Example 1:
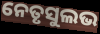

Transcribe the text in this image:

ନେତୃସୁଲଭ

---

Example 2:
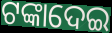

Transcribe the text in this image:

ଟଙ୍କାଦେଇ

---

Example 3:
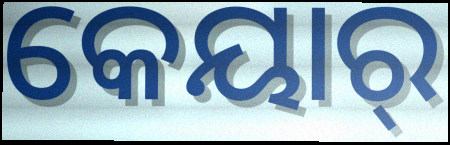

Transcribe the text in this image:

କେୟାର୍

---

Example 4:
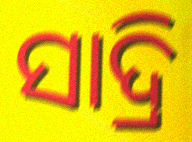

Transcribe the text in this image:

ସାଦ୍ରି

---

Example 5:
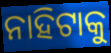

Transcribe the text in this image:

ନାହିଟାକୁ